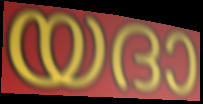
യദാ